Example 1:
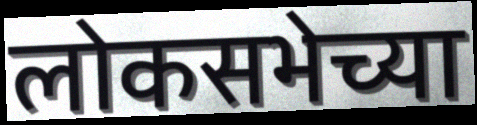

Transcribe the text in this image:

लोकसभेच्या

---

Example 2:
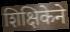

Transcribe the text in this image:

शिक्षिकेने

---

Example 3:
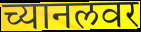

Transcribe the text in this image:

च्यानलवर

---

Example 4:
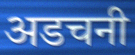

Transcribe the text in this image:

अडचनी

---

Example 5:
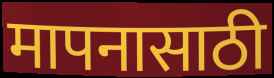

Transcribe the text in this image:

मापनासाठी